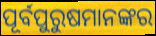
ପୂର୍ବପୁରୁଷମାନଙ୍କର